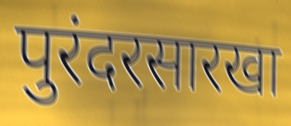
पुरंदरसारखा